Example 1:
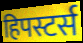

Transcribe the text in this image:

हिपस्टर्स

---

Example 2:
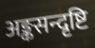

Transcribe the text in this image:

अङ्कसन्दृष्टि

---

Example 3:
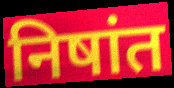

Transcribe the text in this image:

निषांत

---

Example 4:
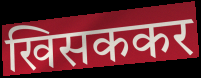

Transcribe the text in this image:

खिसककर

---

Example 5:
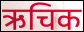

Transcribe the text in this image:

ऋचिक